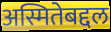
अस्मितेबद्दल